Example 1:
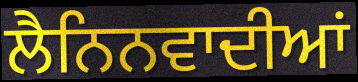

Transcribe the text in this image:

ਲੈਨਿਨਵਾਦੀਆਂ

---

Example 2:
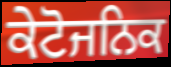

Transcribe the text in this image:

ਕੇਟੋਜਨਿਕ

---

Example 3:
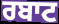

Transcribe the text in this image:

ਰਬਾਟ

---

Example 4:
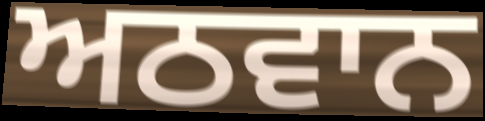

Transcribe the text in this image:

ਅਠਵਾਨ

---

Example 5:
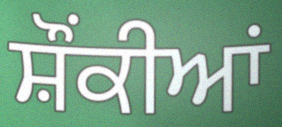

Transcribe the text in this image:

ਸ਼ੌਂਕੀਆਂ